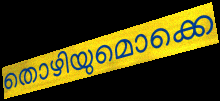
തൊഴിയുമൊക്കെ